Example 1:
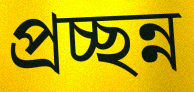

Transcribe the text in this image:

প্রচ্ছন্ন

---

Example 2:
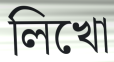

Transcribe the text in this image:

লিখো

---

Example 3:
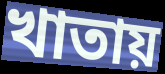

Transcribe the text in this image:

খাতায়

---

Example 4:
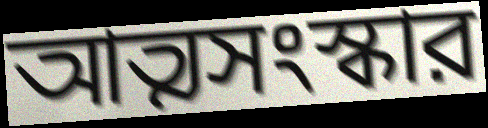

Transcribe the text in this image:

আত্মসংস্কার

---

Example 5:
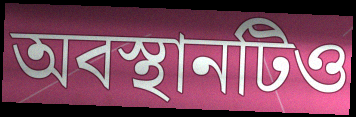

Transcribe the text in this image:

অবস্থানটিও